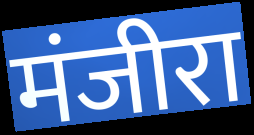
मंजीरा